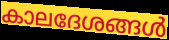
കാലദേശങ്ങൾ